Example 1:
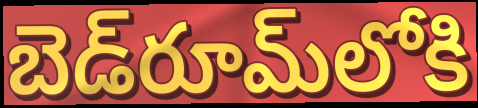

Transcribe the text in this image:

బెడ్‌రూమ్‌లోకి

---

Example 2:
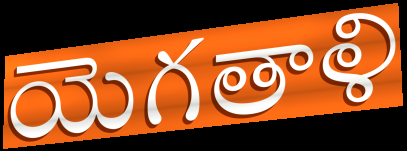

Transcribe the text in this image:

యెగతాళి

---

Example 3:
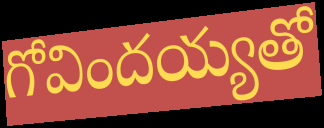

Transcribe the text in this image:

గోవిందయ్యతో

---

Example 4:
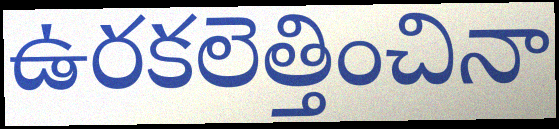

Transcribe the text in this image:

ఉరకలెత్తించినా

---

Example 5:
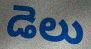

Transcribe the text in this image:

డెలు